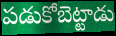
పడుకోబెట్టాడు